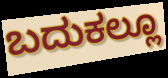
ಬದುಕಲ್ಲೂ